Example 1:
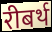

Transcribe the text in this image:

रीबर्थ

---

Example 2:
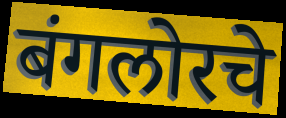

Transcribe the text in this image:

बंगलोरचे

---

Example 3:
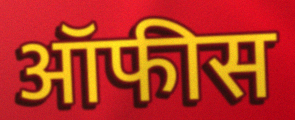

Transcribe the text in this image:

ऑफीस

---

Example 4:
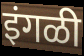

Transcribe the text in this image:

इंगळी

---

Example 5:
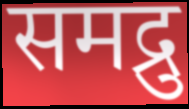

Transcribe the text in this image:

समद्रु